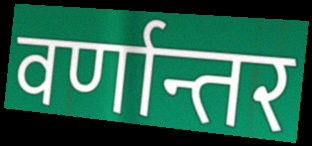
वर्णान्तर